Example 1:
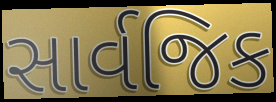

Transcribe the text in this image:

સાર્વજિક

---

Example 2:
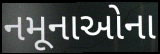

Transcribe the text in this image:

નમૂનાઓના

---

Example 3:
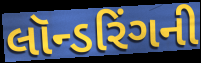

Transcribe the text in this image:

લૉન્ડરિંગની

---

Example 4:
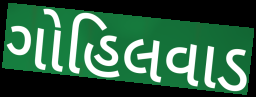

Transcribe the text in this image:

ગોહિલવાડ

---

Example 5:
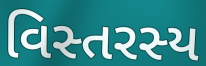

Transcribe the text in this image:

વિસ્તરસ્ય